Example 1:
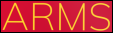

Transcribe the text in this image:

ARMS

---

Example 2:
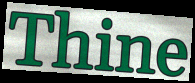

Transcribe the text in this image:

Thine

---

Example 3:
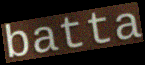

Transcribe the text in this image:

batta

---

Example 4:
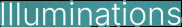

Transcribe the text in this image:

Illuminations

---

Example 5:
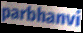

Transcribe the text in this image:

parbhanvi